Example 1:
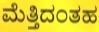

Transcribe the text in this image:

ಮೆತ್ತಿದಂತಹ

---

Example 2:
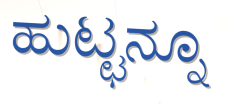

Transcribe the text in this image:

ಹುಟ್ಟನ್ನೂ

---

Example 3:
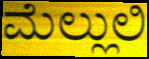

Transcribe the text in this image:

ಮೆಲ್ಲುಲಿ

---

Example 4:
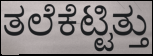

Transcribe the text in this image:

ತಲೆಕೆಟ್ಟಿತ್ತು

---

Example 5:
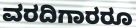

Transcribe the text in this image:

ವರದಿಗಾರರೂ